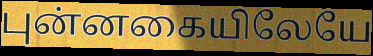
புன்னகையிலேயே